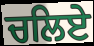
ਚਲਿਏ